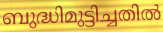
ബുദ്ധിമുട്ടിച്ചതിൽ